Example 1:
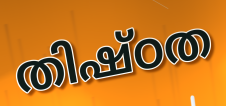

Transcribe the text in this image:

തിഷ്ഠത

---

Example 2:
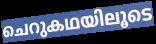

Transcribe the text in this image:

ചെറുകഥയിലൂടെ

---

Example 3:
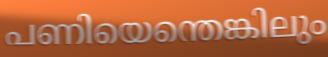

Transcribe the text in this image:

പണിയെന്തെങ്കിലും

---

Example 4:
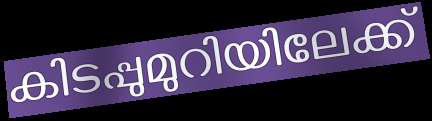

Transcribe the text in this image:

കിടപ്പുമുറിയിലേക്ക്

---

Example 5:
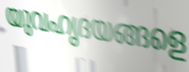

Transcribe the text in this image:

യുവഹൃദയങ്ങളെ